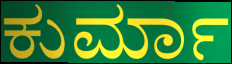
ಕುರ್ಮಾ